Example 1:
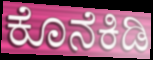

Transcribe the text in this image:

ಕೊನೆಕಿಡಿ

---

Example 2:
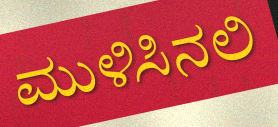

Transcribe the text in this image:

ಮುಳಿಸಿನಲಿ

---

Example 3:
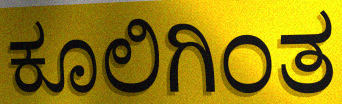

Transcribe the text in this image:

ಕೂಲಿಗಿಂತ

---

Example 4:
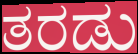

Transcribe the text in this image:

ತರಡು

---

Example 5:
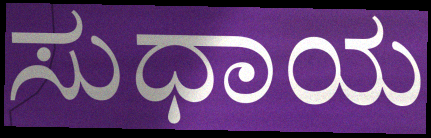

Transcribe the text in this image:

ಸುಧಾಯ